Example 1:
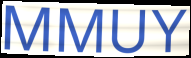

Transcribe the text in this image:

MMUY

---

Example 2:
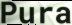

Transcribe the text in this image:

Pura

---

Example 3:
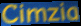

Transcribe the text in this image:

Cimzia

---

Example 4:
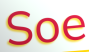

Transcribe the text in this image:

Soe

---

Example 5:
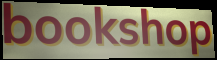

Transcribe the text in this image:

bookshop